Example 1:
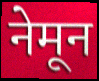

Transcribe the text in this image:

नेमून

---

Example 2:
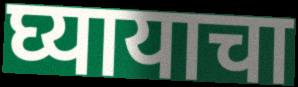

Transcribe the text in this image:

घ्यायाचा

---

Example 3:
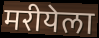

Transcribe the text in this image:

मरीयेला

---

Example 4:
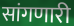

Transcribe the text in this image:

सांगणारी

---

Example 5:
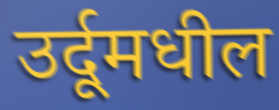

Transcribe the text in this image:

उर्दूमधील